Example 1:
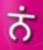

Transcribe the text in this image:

ਨਂ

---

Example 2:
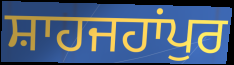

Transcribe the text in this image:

ਸ਼ਾਹਜਹਾਂਪੁਰ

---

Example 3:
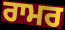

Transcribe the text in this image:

ਰਾਮਰ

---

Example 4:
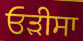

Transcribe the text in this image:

ਓੜੀਸਾ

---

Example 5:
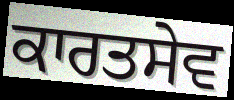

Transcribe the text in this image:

ਕਾਰਤਸੇਵ